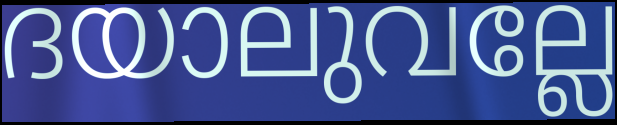
ദയാലുവല്ലേ